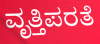
ವೃತ್ತಿಪರತೆ